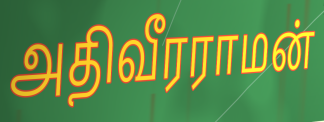
அதிவீரராமன்